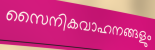
സൈനികവാഹനങ്ങളും